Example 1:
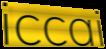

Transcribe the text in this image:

iccai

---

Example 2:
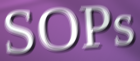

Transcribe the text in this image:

SOPs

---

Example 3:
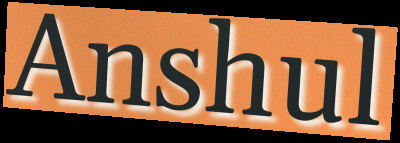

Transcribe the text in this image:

Anshul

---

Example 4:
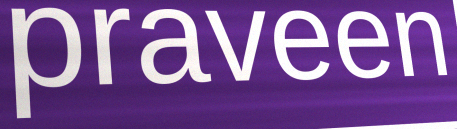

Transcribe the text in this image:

praveen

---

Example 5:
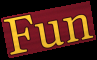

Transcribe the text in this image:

Fun